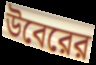
উবেরের